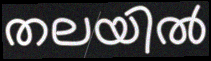
തലയിൽ